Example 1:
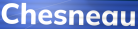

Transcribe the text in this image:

Chesneau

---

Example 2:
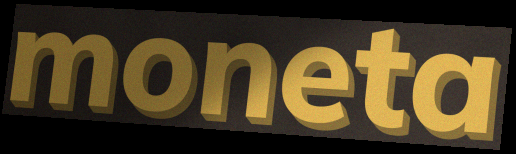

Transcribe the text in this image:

moneta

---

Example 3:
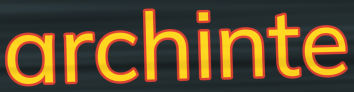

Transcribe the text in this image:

archinte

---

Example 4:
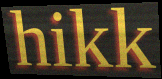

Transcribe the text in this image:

hikk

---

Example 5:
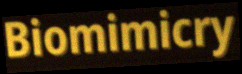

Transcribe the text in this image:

Biomimicry